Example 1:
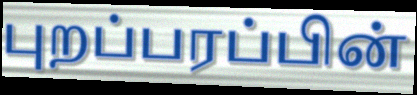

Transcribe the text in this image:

புறப்பரப்பின்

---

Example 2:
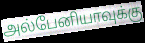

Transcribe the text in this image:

அல்பேனியாவுக்கு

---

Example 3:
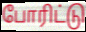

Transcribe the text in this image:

போரிட்டு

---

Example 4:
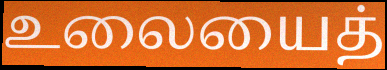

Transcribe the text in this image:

உலையைத்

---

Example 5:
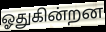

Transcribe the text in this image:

ஓதுகின்றன